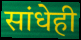
सांधेही